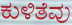
ಕುಳಿತೆವು